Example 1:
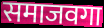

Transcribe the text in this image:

समाजवगा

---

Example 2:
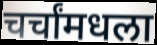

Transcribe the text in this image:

चर्चांमधला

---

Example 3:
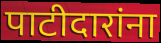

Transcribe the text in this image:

पाटीदारांना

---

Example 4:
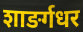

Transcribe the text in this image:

शाङर्गधर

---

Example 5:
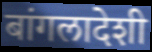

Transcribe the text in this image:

बांगलादेशी